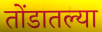
तोंडातल्या